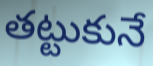
తట్టుకునే